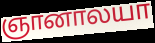
ஞானாலயா